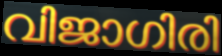
വിജാഗിരി